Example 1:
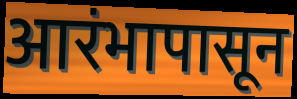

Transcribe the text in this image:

आरंभापासून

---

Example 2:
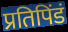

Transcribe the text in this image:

प्रतिपिंडं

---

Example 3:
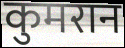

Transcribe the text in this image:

कुमरान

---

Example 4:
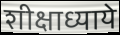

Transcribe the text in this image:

शीक्षाध्याये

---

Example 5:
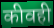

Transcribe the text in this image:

कीवही